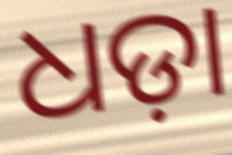
ଧଡ଼ା